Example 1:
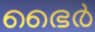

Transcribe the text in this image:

ഭൈർ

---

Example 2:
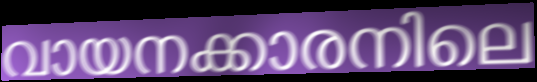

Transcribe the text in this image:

വായനക്കാരനിലെ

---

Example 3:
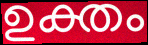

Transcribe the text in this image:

ഉക്തം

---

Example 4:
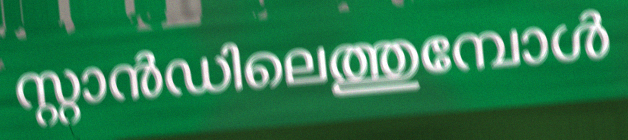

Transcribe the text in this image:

സ്റ്റാൻഡിലെത്തുമ്പോൾ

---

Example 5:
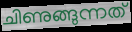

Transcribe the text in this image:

ചിണുങ്ങുന്നത്